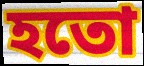
হতো